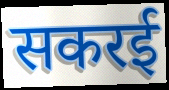
सकरई